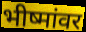
भीष्मांवर